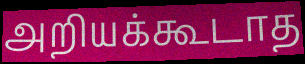
அறியக்கூடாத